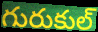
గురుకుల్